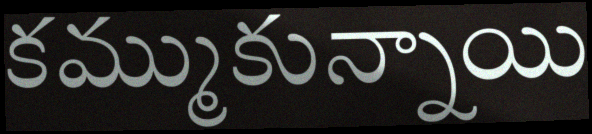
కమ్ముకున్నాయి